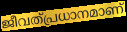
ജീവത്പ്രധാനമാണ്